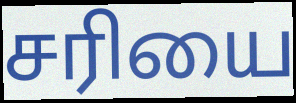
சரியை